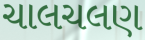
ચાલચલણ